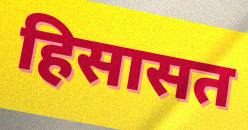
हिसासत